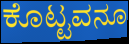
ಕೊಟ್ಟವನೂ